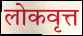
लोकवृत्त